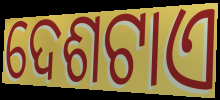
ଦେଶଟାଏ